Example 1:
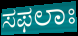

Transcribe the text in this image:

ಸಫಲಾಃ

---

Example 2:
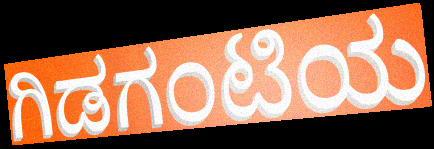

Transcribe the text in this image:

ಗಿಡಗಂಟಿಯ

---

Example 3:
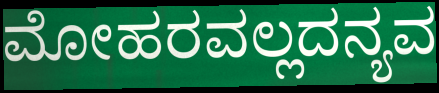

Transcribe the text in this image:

ಮೋಹರವಲ್ಲದನ್ಯವ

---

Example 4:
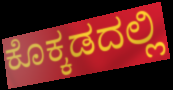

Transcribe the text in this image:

ಕೊಕ್ಕಡದಲ್ಲಿ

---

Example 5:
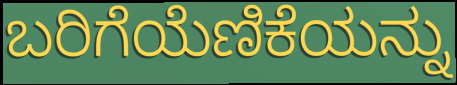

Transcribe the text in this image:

ಬರಿಗೆಯೆಣಿಕೆಯನ್ನು